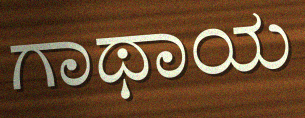
ಗಾಥಾಯ